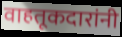
वाहतूकदारांनी